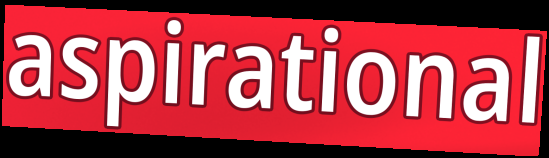
aspirational